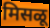
मिसळू